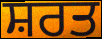
ਸ਼ਰਤ